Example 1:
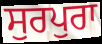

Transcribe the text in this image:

ਸੁਰਪੁਰਾ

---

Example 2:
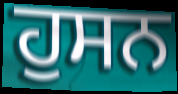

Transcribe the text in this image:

ਹੁਸਨ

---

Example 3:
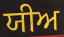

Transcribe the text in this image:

ਯੀਅ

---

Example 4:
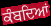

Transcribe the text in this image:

ਕੰਬਦਿਆਂ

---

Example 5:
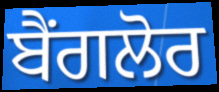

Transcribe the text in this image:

ਬੈਂਗਲੋਰ